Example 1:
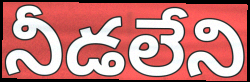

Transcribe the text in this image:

నీడలేని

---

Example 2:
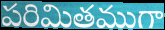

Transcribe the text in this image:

పరిమితముగా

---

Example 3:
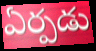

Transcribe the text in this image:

ఏర్పడు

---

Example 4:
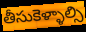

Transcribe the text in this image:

తీసుకెళ్ళాల్సి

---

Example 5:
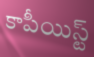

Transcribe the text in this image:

కాపీయిస్ట్